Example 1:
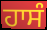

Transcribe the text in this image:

ਹਾਸੰ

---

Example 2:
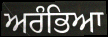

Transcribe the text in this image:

ਅਰੰਭਿਆ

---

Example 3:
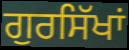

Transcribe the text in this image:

ਗੁਰਸਿੱਖਾਂ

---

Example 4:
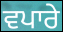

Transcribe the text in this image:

ਵਪਾਰੇ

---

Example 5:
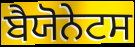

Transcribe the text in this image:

ਬੈਯੋਨੇਟਸ